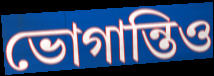
ভোগান্তিও